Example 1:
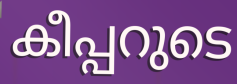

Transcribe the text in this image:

കീപ്പറുടെ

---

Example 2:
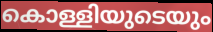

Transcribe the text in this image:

കൊള്ളിയുടെയും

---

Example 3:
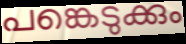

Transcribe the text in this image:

പങ്കെടുക്കും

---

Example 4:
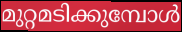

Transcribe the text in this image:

മുറ്റമടിക്കുമ്പോൾ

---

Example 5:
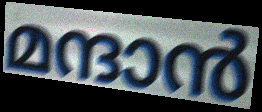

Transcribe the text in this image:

മന്ദാൻ